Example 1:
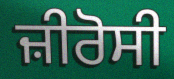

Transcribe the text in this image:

ਜ਼ੀਰੋਸੀ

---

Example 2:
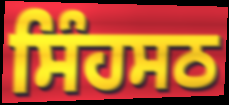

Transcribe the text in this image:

ਸਿੰਹਸਠ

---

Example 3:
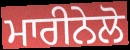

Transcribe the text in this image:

ਮਾਰੀਨੇਲੋ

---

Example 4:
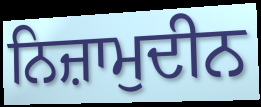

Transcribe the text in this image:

ਨਿਜ਼ਾਮੁਦੀਨ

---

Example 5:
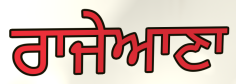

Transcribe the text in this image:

ਰਾਜੇਆਣਾ